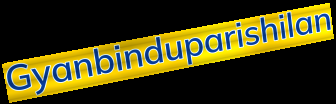
Gyanbinduparishilan